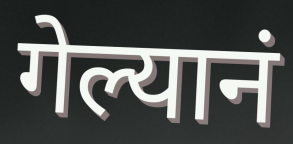
गेल्यानं